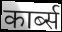
कार्ब्स